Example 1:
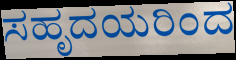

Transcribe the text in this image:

ಸಹೃದಯರಿಂದ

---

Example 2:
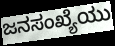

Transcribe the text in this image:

ಜನಸಂಖ್ಯೆಯು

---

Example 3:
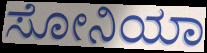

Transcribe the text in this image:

ಸೋನಿಯಾ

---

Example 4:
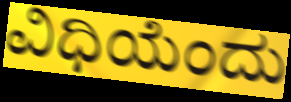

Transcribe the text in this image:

ವಿಧಿಯೆಂದು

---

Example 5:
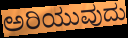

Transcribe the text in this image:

ಅರಿಯುವುದು